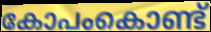
കോപംകൊണ്ട്